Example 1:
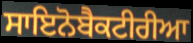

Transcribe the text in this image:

ਸਾਇਨੋਬੈਕਟੀਰੀਆ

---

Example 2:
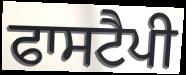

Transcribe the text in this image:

ਫਾਸਟੈਪੀ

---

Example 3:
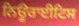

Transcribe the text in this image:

ਨਿਊਰਾਈਟਿਸ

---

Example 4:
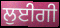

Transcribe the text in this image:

ਲੁਈਗੀ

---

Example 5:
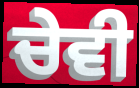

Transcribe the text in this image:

ਚੇਵੀ